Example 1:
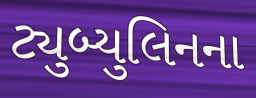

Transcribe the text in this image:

ટ્યુબ્યુલિનના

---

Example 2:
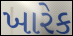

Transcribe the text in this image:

ખારેક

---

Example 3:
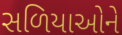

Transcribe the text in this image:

સળિયાઓને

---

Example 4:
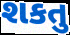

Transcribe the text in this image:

શકતુ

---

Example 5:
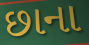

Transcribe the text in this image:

છાના